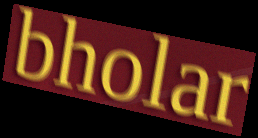
bholar